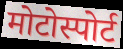
मोटोस्पोर्ट